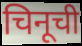
चिनूची